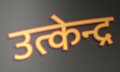
उत्केन्द्र